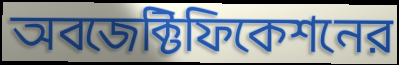
অবজেক্টিফিকেশনের